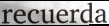
recuerda